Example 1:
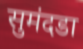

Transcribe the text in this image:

सुमंदडा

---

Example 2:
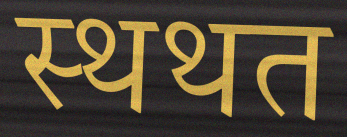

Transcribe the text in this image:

स्थथत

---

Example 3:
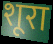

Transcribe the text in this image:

शूरा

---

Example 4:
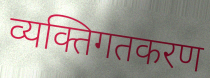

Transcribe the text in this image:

व्यक्तिगतकरण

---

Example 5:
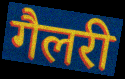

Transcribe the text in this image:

गैलरी